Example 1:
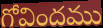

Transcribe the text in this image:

గోవిందము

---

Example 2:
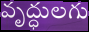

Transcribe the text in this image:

వృద్ధులగు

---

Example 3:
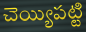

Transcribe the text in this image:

చెయ్యిపట్టి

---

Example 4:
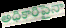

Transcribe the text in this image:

అధికారిపైనా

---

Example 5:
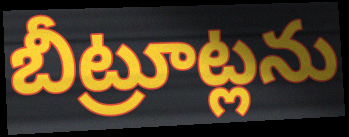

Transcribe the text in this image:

బీట్రూట్లను